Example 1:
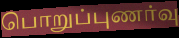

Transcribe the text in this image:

பொறுப்புணர்வு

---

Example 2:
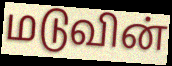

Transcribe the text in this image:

மடுவின்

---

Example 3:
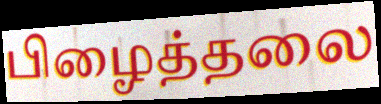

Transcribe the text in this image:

பிழைத்தலை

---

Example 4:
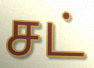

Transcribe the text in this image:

சட்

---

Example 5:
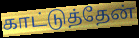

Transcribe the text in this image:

காட்டுத்தேன்